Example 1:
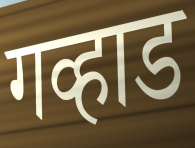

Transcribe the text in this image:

गव्हाड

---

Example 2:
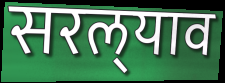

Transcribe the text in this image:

सरल्याव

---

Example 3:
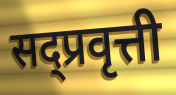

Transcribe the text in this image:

सद्प्रवृत्ती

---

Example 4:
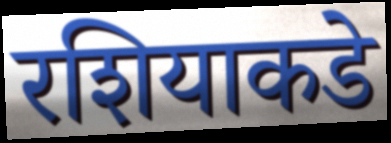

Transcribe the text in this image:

रशियाकडे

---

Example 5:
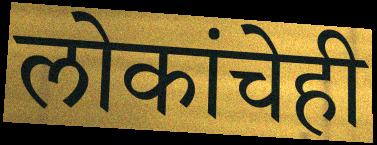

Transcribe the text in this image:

लोकांचेही